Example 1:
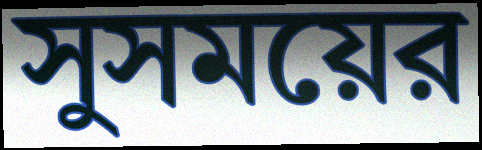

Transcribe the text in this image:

সুসময়ের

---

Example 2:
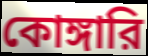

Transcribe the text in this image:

কোঙ্গারি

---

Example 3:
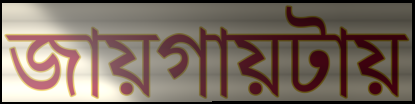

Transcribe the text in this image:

জায়গায়টায়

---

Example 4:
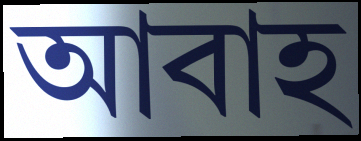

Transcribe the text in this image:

আবাহ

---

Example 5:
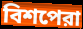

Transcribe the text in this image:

বিশপেরা